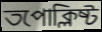
তপোক্লিষ্ট